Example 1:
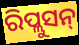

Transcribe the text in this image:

ରିପ୍ଲୁସନ୍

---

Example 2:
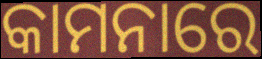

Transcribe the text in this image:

କାମନାରେ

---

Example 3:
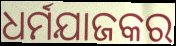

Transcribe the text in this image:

ଧର୍ମଯାଜକର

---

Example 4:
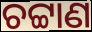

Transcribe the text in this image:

ଚଟ୍ଟାଣ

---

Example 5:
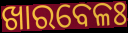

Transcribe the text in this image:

ଖାରବେଳଃ